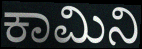
ಕಾಮಿನಿ